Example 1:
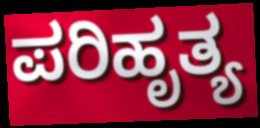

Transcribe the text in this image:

ಪರಿಹೃತ್ಯ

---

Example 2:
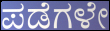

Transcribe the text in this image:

ಪಡೆಗಳೇ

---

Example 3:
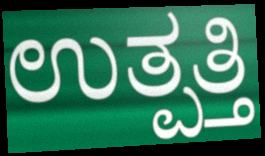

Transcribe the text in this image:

ಉತ್ಪತ್ತಿ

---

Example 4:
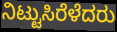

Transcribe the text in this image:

ನಿಟ್ಟುಸಿರೆಳೆದರು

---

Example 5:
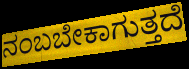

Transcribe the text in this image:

ನಂಬಬೇಕಾಗುತ್ತದೆ